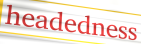
headedness